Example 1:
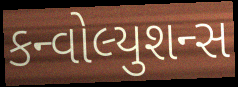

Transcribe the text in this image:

કન્વોલ્યુશન્સ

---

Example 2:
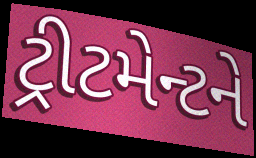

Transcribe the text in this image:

ટ્રીટમેન્ટને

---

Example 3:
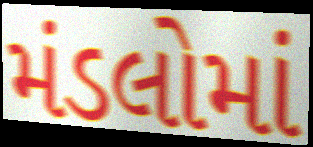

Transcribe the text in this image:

મંડલોમાં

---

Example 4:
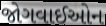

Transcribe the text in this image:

જોગવાઈઓન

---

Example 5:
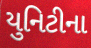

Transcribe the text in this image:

યુનિટીના